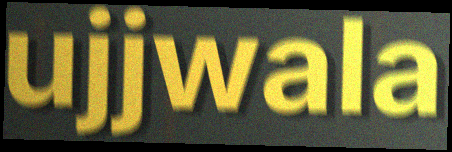
ujjwala